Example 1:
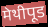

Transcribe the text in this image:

मेथीपूड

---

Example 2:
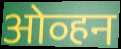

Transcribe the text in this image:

ओव्हन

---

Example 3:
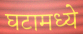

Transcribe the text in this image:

घटामध्ये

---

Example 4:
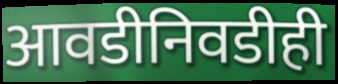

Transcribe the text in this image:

आवडीनिवडीही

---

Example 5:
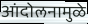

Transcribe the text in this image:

आंदोलनामुळे